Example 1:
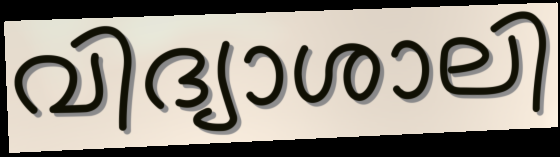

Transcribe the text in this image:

വിദ്യാശാലി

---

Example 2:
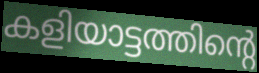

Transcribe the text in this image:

കളിയാട്ടത്തിന്റെ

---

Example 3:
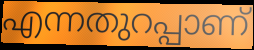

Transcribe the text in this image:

എന്നതുറപ്പാണ്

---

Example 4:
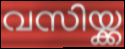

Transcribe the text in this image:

വസിയ്ക്ക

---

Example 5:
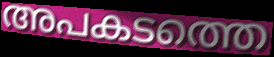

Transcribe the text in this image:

അപകടത്തെ